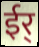
ईर्